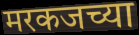
मरकजच्या